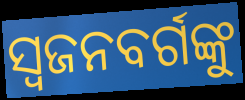
ସ୍ୱଜନବର୍ଗଙ୍କୁ